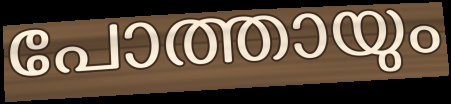
പോത്തായും